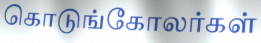
கொடுங்கோலர்கள்